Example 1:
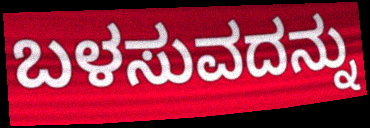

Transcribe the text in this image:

ಬಳಸುವದನ್ನು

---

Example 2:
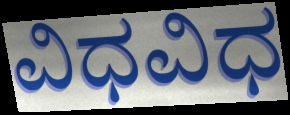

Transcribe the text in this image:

ವಿಧವಿಧ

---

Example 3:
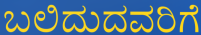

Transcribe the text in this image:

ಬಲಿದುದವರಿಗೆ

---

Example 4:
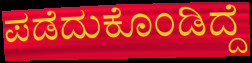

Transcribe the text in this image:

ಪಡೆದುಕೊಂಡಿದ್ದೆ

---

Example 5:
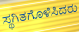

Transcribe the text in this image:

ಸ್ಥಗಿತಗೊಳಿಸಿದರು